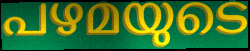
പഴമയുടെ